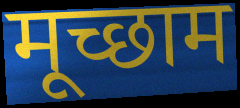
मूच्छाम